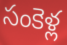
సంకెళ్ల